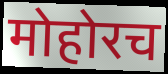
मोहोरच